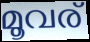
മൂവര്